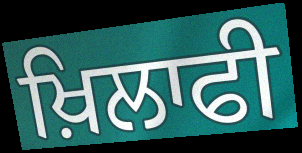
ਖ਼ਿਲਾਫੀ